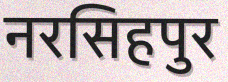
नरसिहपुर